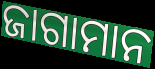
ଜାଗାମାନ